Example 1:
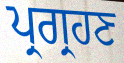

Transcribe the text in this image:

ਪ੍ਰਗ੍ਰਹਣ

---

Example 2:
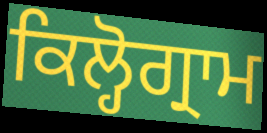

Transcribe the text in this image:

ਕਿਲ੍ਹੋਗ੍ਰਾਮ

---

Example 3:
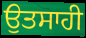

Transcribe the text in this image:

ਉਤਸਾਹੀ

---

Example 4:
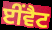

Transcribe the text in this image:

ਈਂਵੈਟ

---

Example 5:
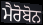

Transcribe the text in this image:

ਮੈਰੋਬੋਨ